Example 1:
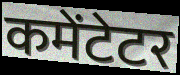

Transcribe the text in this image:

कमेंटेटर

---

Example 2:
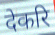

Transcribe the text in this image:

देकरि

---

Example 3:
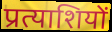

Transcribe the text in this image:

प्रत्‍याशियों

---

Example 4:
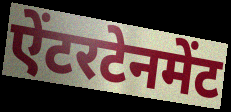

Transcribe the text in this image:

ऐंटरटेनमेंट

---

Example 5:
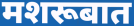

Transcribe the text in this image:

मशरूबात